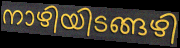
നാഴിയിടങ്ങഴി